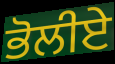
ਭੋਲੀਏ